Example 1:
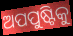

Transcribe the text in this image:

ଅପପୁଷ୍ଟିକୁ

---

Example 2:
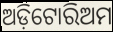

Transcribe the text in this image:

ଅଡ଼ିଟୋରିଅମ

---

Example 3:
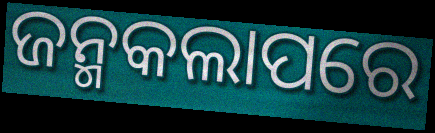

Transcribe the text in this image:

ଜନ୍ମକଲାପରେ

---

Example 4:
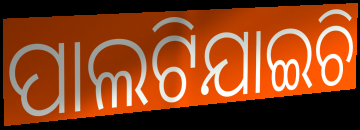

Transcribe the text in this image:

ପାଲଟିଯାଇଚି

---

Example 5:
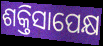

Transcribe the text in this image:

ଶକ୍ତିସାପେକ୍ଷ